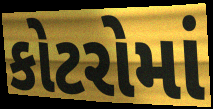
કોટરોમાં